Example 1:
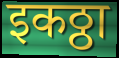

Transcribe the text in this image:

इकठ्ठा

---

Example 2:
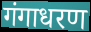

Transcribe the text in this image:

गंगाधरण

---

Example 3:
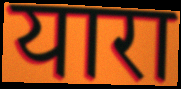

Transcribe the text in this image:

यारा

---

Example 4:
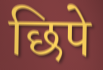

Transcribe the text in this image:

छिपे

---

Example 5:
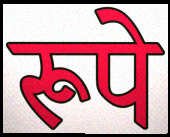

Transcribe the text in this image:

रूपे